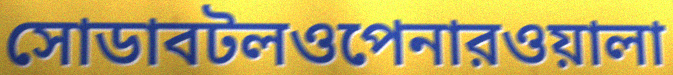
সোডাবটলওপেনারওয়ালা